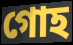
গোহ